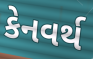
કેનવર્થ